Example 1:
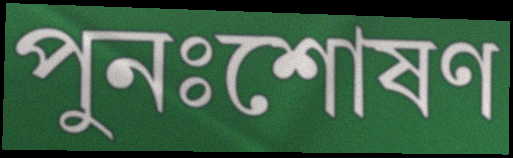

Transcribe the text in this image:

পুনঃশোষণ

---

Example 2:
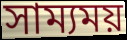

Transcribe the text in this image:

সাম্যময়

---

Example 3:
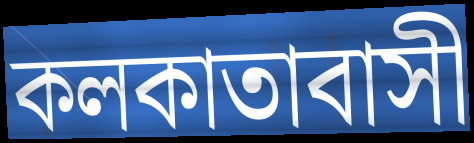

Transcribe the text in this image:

কলকাতাবাসী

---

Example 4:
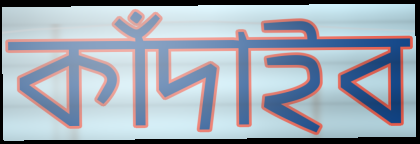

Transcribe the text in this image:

কাঁদাইব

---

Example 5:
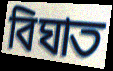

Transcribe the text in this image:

বিঘাত